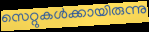
സെറ്റുകൾക്കായിരുന്നു